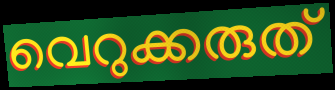
വെറുക്കരുത്